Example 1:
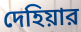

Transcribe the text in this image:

দেহিয়ার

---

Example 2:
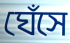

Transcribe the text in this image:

ঘেঁসে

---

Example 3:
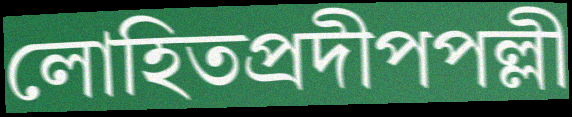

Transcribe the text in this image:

লোহিতপ্রদীপপল্লী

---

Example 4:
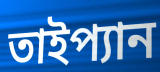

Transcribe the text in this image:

তাইপ্যান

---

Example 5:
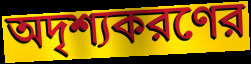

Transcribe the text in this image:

অদৃশ্যকরণের